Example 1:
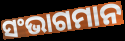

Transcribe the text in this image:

ସଂଭାଗମାନ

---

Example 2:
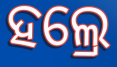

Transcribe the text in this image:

ହଲ୍ରେ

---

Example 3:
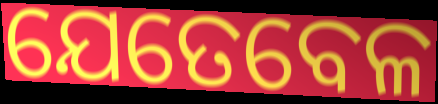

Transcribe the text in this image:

ଯେତେବେଳ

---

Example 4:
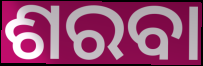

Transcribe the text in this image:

ଶରବା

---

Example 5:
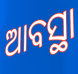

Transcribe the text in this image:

ଆବସ୍ଥା